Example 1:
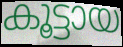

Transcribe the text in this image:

കൂട്ടായ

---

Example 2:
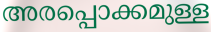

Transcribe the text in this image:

അരപ്പൊക്കമുള്ള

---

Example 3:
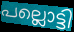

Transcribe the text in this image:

പല്ലൊട്ടി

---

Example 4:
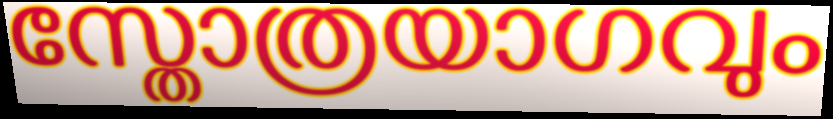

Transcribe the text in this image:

സ്തോത്രയാഗവും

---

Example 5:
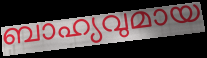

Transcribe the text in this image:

ബാഹ്യവുമായ